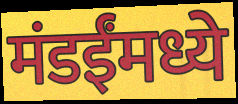
मंडईंमध्ये